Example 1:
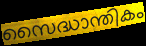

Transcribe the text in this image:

സൈദ്ധാന്തികം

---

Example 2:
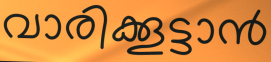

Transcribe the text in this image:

വാരിക്കൂട്ടാൻ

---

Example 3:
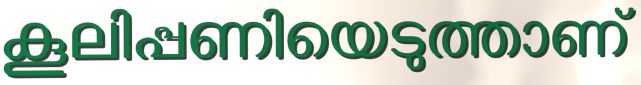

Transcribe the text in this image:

കൂലിപ്പണിയെടുത്താണ്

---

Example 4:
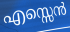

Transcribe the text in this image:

എസ്സെൻ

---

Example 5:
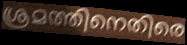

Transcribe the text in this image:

ശ്രമത്തിനെതിരെ